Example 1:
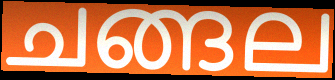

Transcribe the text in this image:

ചങ്ങല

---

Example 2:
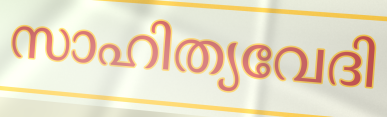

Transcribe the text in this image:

സാഹിത്യവേദി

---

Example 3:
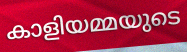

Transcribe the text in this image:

കാളിയമ്മയുടെ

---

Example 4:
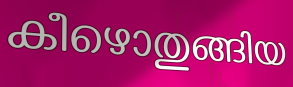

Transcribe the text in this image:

കീഴൊതുങ്ങിയ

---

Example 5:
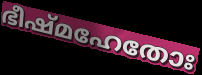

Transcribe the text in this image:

ഭീഷ്മഹേതോഃ